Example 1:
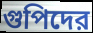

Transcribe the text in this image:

গুপিদের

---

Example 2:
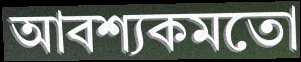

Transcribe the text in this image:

আবশ্যকমতো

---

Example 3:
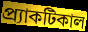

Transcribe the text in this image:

প্র্যাকটিকাল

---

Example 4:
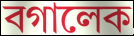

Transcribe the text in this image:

বগালেক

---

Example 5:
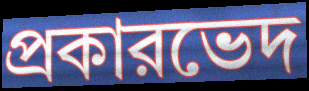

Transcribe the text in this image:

প্রকারভেদ